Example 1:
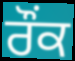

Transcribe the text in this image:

ਰੌਂਕ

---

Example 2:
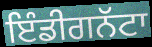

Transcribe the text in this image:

ਇੰਡੀਗਨੱਟਾ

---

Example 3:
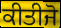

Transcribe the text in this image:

ਕੀਤੀਜੋ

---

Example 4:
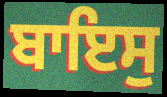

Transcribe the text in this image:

ਬਾਇਸੁ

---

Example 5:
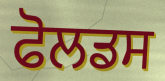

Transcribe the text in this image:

ਫੋਲਡਸ